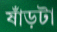
ষাঁড়টা